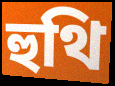
হুথি